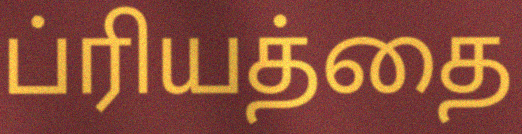
ப்ரியத்தை